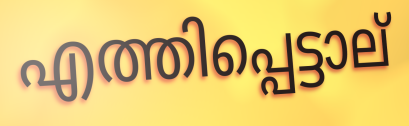
എത്തിപ്പെട്ടാല്